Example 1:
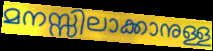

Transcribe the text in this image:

മനസ്സിലാക്കാനുള്ള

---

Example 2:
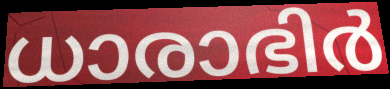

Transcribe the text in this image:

ധാരാഭിർ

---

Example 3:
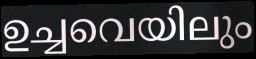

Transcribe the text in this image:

ഉച്ചവെയിലും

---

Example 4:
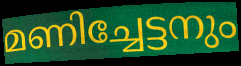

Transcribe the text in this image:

മണിച്ചേട്ടനും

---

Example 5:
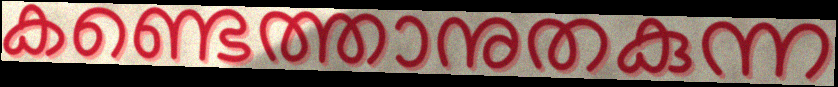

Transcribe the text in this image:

കണ്ടെത്താനുതകുന്ന